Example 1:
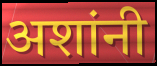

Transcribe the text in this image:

अशांनी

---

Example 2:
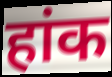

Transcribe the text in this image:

हांक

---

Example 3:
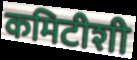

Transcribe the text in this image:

कमिटीशी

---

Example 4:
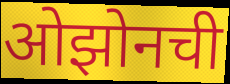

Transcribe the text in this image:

ओझोनची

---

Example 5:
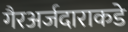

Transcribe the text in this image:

गैरअर्जदाराकडे